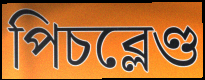
পিচব্লেণ্ড